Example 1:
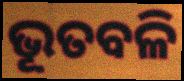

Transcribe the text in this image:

ଭୂତବଳି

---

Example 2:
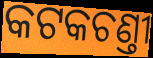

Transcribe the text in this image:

କଟକଚଣ୍ତୀ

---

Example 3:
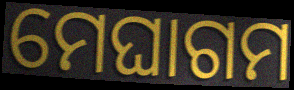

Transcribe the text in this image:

ମେଘାଗମ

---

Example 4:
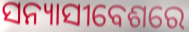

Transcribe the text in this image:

ସନ୍ୟାସୀବେଶରେ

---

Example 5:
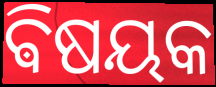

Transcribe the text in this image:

ଵିଷୟକ